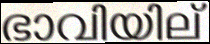
ഭാവിയില്